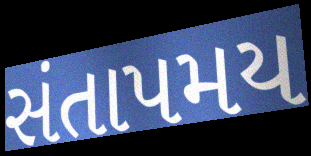
સંતાપમય